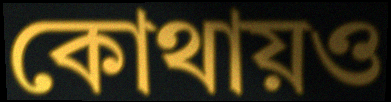
কোথায়ও